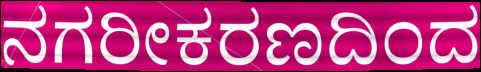
ನಗರೀಕರಣದಿಂದ